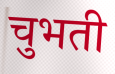
चुभती